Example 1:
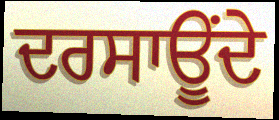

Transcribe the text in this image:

ਦਰਸਾਊਂਦੇ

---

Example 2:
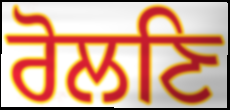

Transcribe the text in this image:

ਰੋਲਣਿ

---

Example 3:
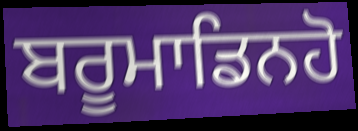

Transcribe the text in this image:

ਬਰੂਮਾਡਿਨਹੋ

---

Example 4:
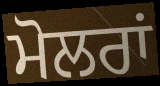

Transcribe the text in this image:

ਮੋਲਰਾਂ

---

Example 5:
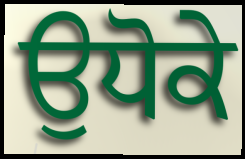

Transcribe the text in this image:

ਉਧੋਕੇ